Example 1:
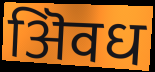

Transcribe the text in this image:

ऄिवध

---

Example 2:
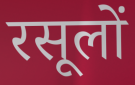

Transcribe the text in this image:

रसूलों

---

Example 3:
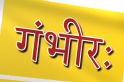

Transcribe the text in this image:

गंभीरः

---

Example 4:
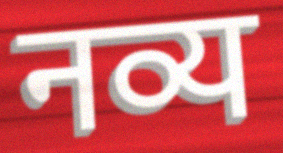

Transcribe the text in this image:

नव्य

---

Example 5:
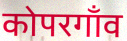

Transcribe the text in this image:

कोपरगाँव